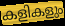
കളികളും